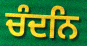
ਚੰਦਨਿ